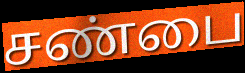
சண்பை